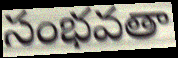
సంభవతా